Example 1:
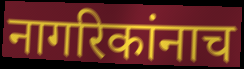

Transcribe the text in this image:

नागरिकांनाच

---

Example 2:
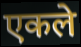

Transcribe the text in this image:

एकले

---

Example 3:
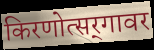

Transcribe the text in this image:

किरणोत्सर्गावर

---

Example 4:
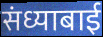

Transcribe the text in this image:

संध्याबाई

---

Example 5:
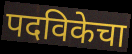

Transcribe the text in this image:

पदविकेचा